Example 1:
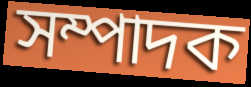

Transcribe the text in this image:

সম্পাদক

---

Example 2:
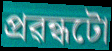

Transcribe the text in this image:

প্ৰৱন্ধটো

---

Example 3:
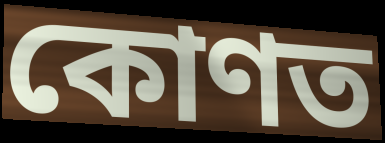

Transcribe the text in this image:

কোণত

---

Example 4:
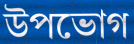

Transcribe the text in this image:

উপভোগ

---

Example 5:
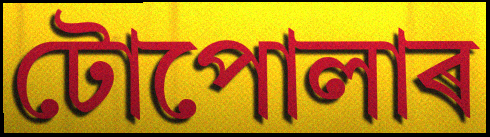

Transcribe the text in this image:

টোপোলাৰ